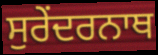
ਸੁਰੇਂਦਰਨਾਥ